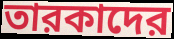
তারকাদের